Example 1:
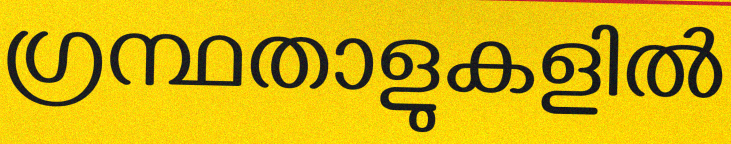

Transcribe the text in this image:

ഗ്രന്ഥതാളുകളിൽ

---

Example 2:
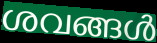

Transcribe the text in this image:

ശവങ്ങൾ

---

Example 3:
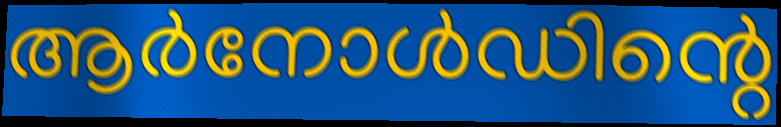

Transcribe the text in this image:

ആർനോൾഡിന്റെ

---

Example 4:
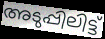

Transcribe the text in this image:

അടുപ്പിലിട്ട്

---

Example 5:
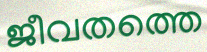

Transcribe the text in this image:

ജീവതത്തെ